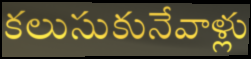
కలుసుకునేవాళ్లు